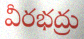
వీరభద్రు